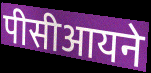
पीसीआयने